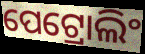
ପେଟ୍ରୋଲିଂ